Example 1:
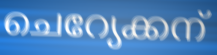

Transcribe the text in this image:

ചെറ്യേക്കന്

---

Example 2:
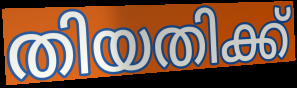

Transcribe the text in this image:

തിയതിക്ക്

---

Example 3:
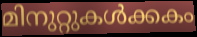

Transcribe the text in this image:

മിനുറ്റുകൾക്കകം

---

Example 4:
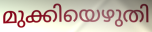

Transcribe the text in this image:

മുക്കിയെഴുതി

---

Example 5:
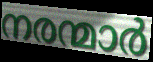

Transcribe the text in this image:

നരന്മാർ